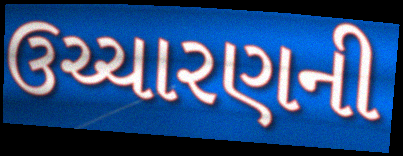
ઉચ્ચારણની